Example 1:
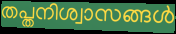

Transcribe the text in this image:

തപ്തനിശ്വാസങ്ങൾ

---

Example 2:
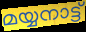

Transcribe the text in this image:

മയ്യനാട്ട്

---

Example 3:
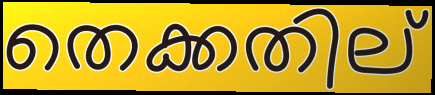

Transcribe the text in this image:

തെക്കതില്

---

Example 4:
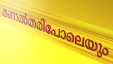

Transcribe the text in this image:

മണൽതരിപോലെയും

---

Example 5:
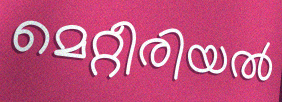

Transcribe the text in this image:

മെറ്റീരിയൽ